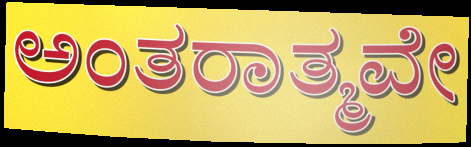
ಅಂತರಾತ್ಮವೇ